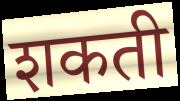
शकती